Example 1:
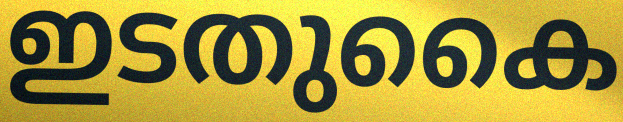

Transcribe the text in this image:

ഇടതുകൈ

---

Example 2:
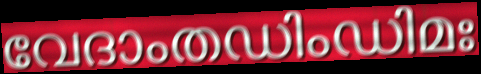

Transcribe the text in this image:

വേദാംതഡിംഡിമഃ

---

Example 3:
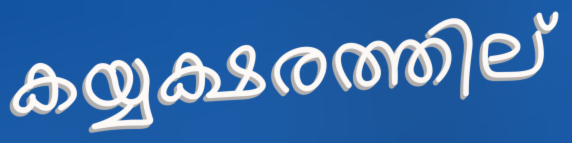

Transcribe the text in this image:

കയ്യക്ഷരത്തില്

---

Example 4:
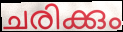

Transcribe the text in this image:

ചരിക്കും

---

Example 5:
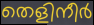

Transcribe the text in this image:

തെളിനീർ